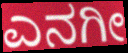
ಎನಗೀ